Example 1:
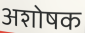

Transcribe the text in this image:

अशोषक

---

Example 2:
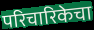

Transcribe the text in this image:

परिचारिकेचा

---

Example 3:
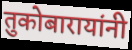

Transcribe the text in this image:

तुकोबारायांनी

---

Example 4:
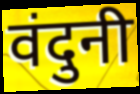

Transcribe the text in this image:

वंदुनी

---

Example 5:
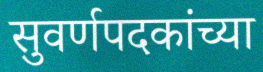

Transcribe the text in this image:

सुवर्णपदकांच्या